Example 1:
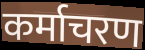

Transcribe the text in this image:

कर्माचरण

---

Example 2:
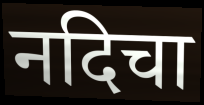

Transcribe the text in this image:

नदिचा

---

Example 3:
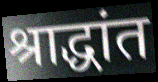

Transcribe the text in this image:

श्राद्धांत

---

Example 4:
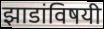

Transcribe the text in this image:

झाडांविषयी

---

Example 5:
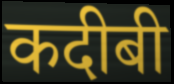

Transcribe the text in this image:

कदीबी